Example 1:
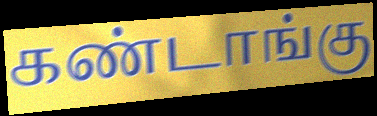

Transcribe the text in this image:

கண்டாங்கு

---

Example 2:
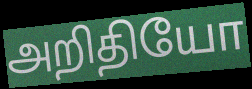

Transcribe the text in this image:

அறிதியோ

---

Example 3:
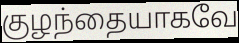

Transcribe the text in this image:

குழந்தையாகவே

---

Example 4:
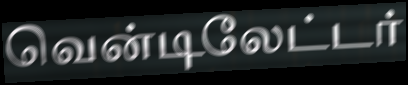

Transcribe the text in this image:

வென்டிலேட்டர்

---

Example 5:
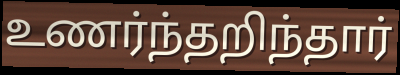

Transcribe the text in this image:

உணர்ந்தறிந்தார்